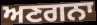
ਅਣਗਨਾ